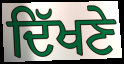
ਦਿੱਖਣੇ